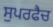
ਸੁਪਰਫੈਚ